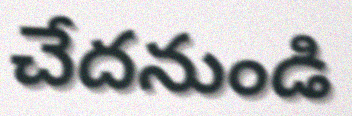
చేదనుండి